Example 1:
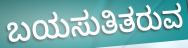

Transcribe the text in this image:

ಬಯಸುತಿತರುವ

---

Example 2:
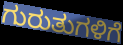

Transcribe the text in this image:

ಗುರುತುಗಳಿಗೆ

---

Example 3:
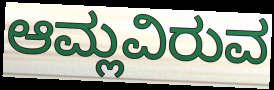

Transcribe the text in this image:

ಆಮ್ಲವಿರುವ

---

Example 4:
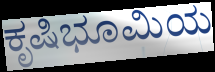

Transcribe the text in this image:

ಕೃಷಿಭೂಮಿಯ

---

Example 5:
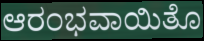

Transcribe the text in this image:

ಆರಂಭವಾಯಿತೊ